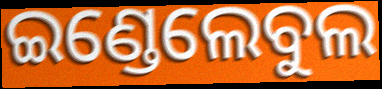
ଇଣ୍ଡେଲେବୁଲ